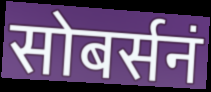
सोबर्सनं